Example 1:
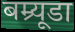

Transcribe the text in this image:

बम्र्यूडा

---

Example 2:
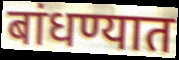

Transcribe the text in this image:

बांधण्यात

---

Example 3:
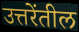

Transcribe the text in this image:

उत्तरेंतील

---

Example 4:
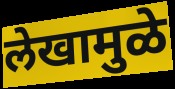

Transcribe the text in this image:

लेखामुळे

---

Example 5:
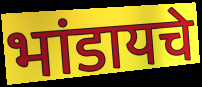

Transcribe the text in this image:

भांडायचे